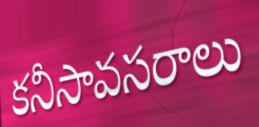
కనీసావసరాలు